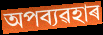
অপব্যৱহাৰ